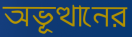
অভূত্থানের